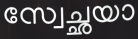
സ്വേച്ഛയാ